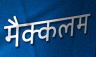
मैक्कलम